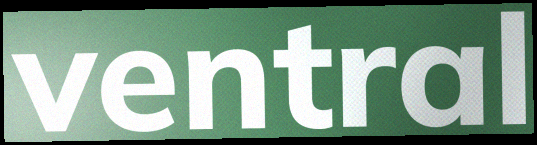
ventral